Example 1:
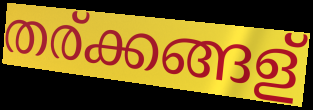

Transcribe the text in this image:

തര്ക്കങ്ങള്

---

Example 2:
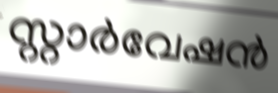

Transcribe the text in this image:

സ്റ്റാർവേഷൻ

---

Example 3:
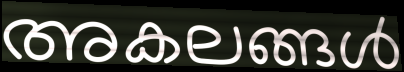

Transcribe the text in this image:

അകലങ്ങൾ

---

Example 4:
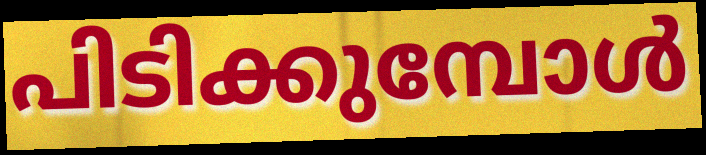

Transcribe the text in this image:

പിടിക്കുമ്പോൾ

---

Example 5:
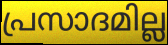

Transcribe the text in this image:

പ്രസാദമില്ല